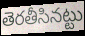
తెరతీసినట్టు